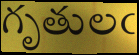
గృతులఁ